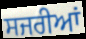
ਸਜਰੀਆਂ